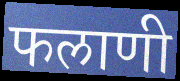
फलाणी